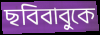
ছবিবাবুকে